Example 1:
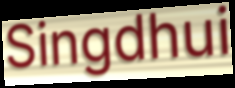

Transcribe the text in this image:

Singdhui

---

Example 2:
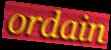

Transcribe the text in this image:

ordain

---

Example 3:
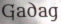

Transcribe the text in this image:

Gadag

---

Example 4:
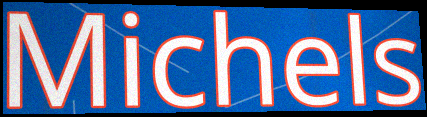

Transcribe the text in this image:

Michels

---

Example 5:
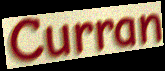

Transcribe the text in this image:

Curran